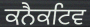
ਕਨੈਕਟਿਵ